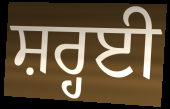
ਸ਼ਰ੍ਹਈ